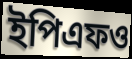
ইপিএফও